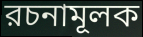
রচনামূলক